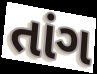
તાંગ